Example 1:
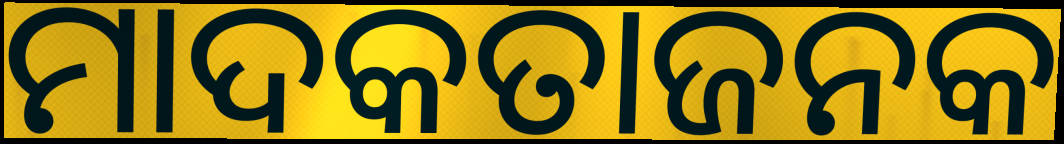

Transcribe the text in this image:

ମାଦକତାଜନକ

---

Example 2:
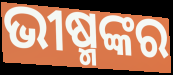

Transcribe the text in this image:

ଭୀଷ୍ମଙ୍କର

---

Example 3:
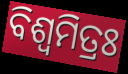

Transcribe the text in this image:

ବିଶ୍ବମିତ୍ରଃ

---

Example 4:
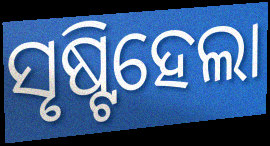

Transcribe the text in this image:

ସୃଷ୍ଟିହେଲା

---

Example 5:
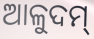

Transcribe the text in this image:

ଆଳୁଦମ୍